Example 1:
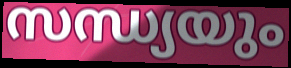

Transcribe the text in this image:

സന്ധ്യയും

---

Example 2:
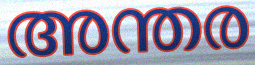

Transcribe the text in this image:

അന്തര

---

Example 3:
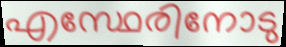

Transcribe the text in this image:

എസ്ഥേരിനോടു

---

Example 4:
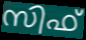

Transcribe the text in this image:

സിഫ്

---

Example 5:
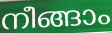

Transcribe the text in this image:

നീങ്ങാം